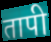
तापी